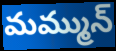
మమ్మున్